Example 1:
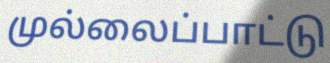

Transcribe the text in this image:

முல்லைப்பாட்டு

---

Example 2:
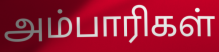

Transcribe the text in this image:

அம்பாரிகள்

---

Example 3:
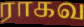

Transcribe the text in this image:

ராகவ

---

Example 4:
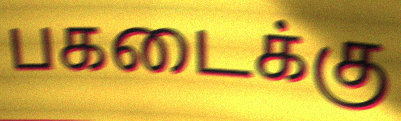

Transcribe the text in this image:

பகடைக்கு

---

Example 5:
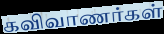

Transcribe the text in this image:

கவிவாணர்கள்